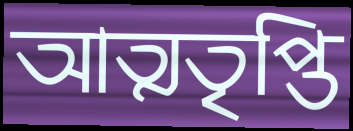
আত্মতৃপ্তি